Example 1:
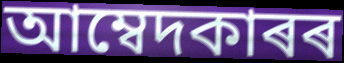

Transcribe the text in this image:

আম্বেদকাৰৰ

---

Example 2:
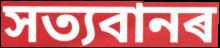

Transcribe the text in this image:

সত্যবানৰ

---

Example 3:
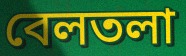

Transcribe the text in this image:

বেলতলা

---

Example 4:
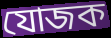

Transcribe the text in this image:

যোজক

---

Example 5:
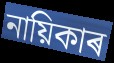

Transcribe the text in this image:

নায়িকাৰ